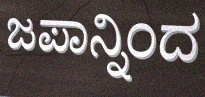
ಜಪಾನ್ನಿಂದ